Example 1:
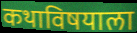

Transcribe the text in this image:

कथाविषयाला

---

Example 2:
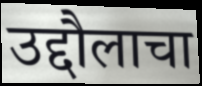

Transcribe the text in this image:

उद्दौलाचा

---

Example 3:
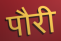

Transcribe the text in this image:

पौरी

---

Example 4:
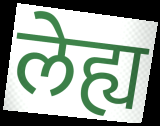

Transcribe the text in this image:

लेह्य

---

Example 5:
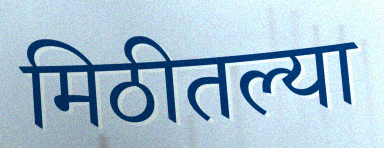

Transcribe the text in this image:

मिठीतल्या